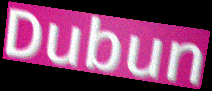
Dubun